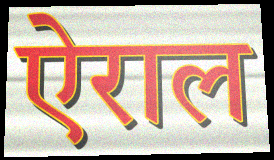
ऐराल